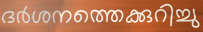
ദർശനത്തെക്കുറിച്ചു